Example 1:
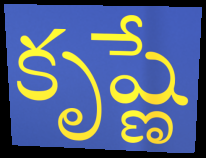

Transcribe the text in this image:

కృష్ణే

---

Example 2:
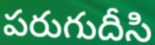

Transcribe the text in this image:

పరుగుదీసి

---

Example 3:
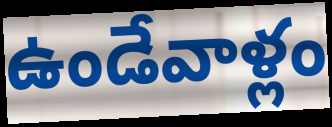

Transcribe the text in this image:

ఉండేవాళ్లం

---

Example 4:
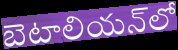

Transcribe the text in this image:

బెటాలియన్‌లో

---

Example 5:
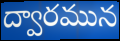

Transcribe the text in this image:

ద్వారమున